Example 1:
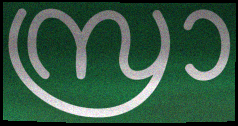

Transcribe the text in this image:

സ്രാ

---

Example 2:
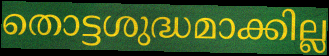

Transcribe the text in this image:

തൊട്ടശുദ്ധമാക്കില്ല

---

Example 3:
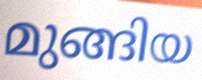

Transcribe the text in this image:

മുങ്ങിയ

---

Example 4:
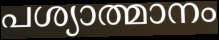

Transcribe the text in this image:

പശ്യാത്മാനം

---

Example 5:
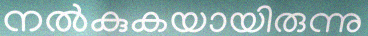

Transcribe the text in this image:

നൽകുകയായിരുന്നു